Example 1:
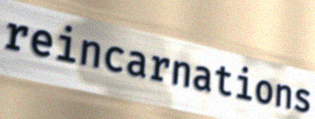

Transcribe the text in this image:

reincarnations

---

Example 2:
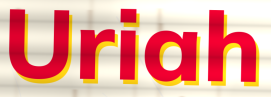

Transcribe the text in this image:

Uriah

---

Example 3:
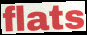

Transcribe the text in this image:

flats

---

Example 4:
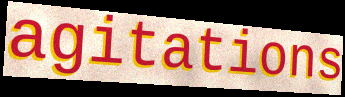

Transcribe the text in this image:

agitations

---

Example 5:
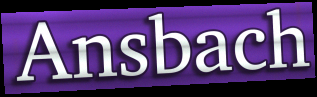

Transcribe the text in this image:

Ansbach